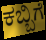
ಕಬ್ಬಿಗೆ